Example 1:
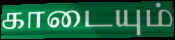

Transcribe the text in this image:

காடையும்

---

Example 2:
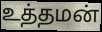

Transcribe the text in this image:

உத்தமன்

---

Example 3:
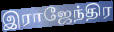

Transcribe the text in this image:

இராஜேந்திர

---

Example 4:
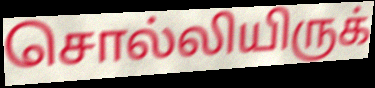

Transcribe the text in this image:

சொல்லியிருக்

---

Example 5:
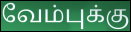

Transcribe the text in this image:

வேம்புக்கு